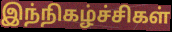
இந்நிகழ்ச்சிகள்